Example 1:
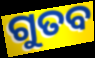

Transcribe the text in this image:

ଗୁତବ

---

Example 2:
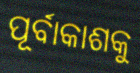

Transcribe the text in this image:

ପୂର୍ବାକାଶକୁ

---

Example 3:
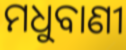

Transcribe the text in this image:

ମଧୁବାଣୀ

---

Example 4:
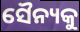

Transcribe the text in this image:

ସୈନ୍ୟକୁ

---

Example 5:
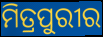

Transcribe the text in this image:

ମିତ୍ରପୁରୀର